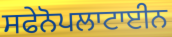
ਸਫੇਨੋਪਲਾਟਾਈਨ